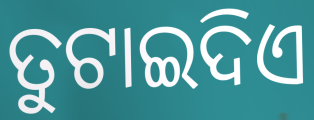
ତୁଟାଇଦିଏ